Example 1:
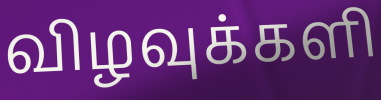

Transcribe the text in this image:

விழவுக்களி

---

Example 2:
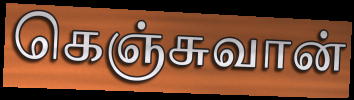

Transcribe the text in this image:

கெஞ்சுவான்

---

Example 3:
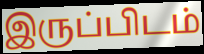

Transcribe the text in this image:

இருப்பிடம்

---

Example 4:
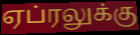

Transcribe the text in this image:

ஏப்ரலுக்கு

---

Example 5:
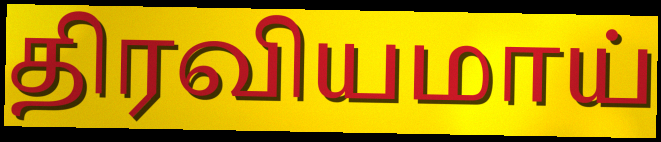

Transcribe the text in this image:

திரவியமாய்